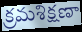
క్రమశిక్షణా